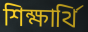
শিক্ষার্থি